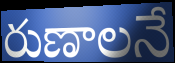
రుణాలనే